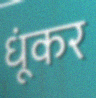
धूंकर